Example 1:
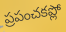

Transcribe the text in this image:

ప్రపంచకప్లో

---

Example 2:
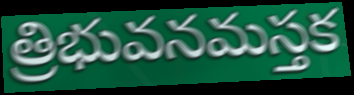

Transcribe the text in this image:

త్రిభువనమస్తక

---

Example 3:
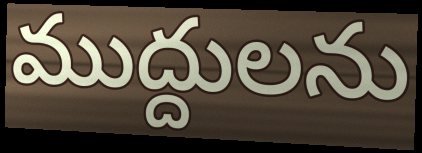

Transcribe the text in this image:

ముద్దులను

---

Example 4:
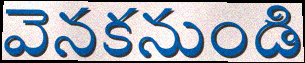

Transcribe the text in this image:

వెనకనుండి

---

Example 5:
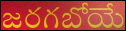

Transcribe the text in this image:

జరగబోయే